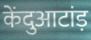
केंदुआटांड़